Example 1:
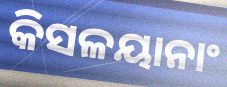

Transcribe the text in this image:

କିସଳୟାନାଂ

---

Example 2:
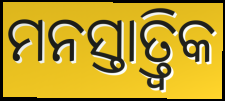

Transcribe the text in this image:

ମନସ୍ତାତ୍ତ୍ବିକ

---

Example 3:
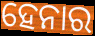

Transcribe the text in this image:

ହେନାର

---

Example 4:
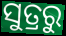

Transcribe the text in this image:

ସୁତ୍ରରୁ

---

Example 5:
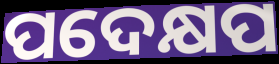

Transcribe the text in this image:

ପଦେକ୍ଷପ